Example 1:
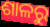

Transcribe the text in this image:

ଶାଳରୁ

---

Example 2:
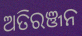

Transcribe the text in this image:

ଅତିରଞ୍ଜନ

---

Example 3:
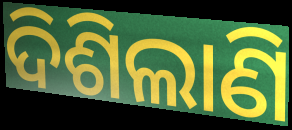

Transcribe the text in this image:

ଦିଶିଲାଣି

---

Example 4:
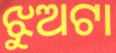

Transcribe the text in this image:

ଝୁଅଟା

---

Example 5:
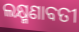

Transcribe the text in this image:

ଲକ୍ଷ୍ମଣାବତୀ